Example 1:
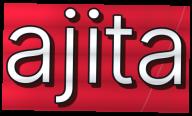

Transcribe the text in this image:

ajita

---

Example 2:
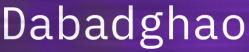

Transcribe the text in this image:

Dabadghao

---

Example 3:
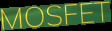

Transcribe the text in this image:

MOSFET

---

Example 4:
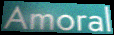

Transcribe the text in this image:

Amoral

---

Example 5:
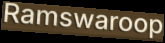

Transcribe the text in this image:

Ramswaroop